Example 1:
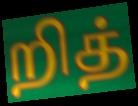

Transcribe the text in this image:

றித்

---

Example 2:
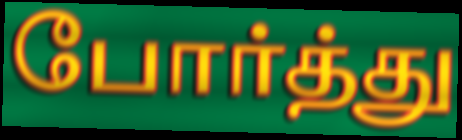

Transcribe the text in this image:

போர்த்து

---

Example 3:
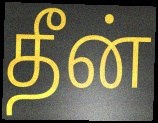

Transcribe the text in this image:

தீன்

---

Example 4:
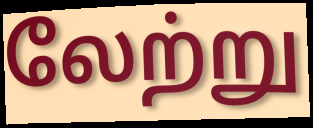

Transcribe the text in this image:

லேற்று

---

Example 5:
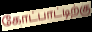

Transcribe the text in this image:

கோட்பாட்டிற்கு